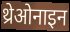
थ्रेओनाइन